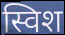
स्विश